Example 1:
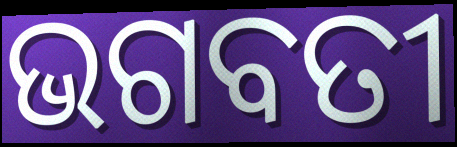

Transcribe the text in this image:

ଭଗବତୀ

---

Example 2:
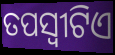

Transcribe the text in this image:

ତପସ୍ୱୀଟିଏ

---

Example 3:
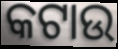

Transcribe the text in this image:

କଟାଉ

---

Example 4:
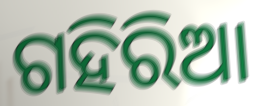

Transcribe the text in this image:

ଗହିରିଆ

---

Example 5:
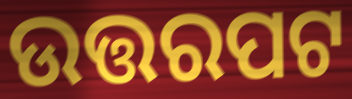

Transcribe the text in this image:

ଉତ୍ତରପଟ